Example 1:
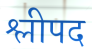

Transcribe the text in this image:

श्लीपद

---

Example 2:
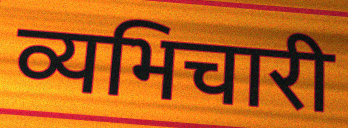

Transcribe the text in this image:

व्यभिचारी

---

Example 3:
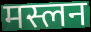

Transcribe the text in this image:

मस्लन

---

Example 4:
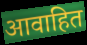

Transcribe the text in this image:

आवाहित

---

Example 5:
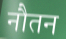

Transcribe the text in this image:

नौतन